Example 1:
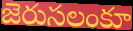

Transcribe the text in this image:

జెరుసలంకూ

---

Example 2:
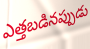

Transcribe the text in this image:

ఎత్తబడినప్పుడు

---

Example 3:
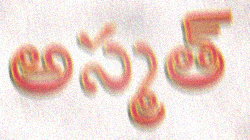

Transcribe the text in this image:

అస్మత్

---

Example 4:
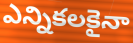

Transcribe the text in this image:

ఎన్నికలకైనా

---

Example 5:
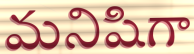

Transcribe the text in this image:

మనిషిగా